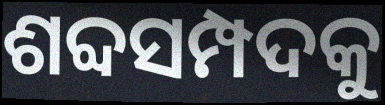
ଶବ୍ଦସମ୍ପଦକୁ